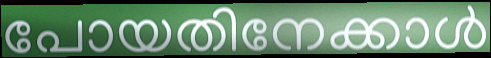
പോയതിനേക്കാൾ